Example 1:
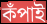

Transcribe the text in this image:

কঁপাই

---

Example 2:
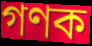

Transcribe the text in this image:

গণক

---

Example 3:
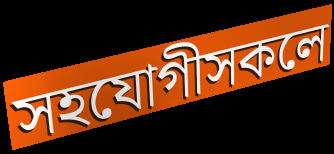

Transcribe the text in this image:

সহযোগীসকলে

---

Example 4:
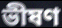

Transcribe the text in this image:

ভীষণ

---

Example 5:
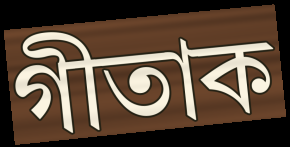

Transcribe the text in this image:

গীতাক